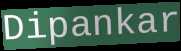
Dipankar